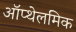
ऑप्थेलमिक